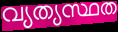
വ്യത്യസ്ഥത